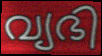
വ്യഭി